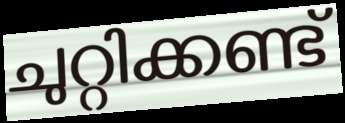
ചുറ്റിക്കണ്ട്